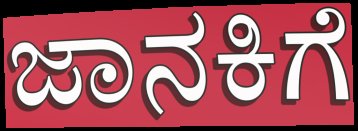
ಜಾನಕಿಗೆ